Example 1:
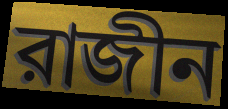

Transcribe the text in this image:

রাজীন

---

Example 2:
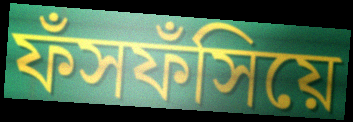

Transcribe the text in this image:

ফঁসফঁসিয়ে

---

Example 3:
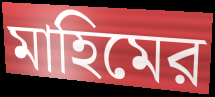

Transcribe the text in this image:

মাহিমের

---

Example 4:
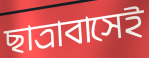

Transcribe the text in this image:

ছাত্রাবাসেই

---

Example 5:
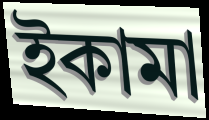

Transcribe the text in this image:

ইকামা